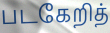
படகேறித்